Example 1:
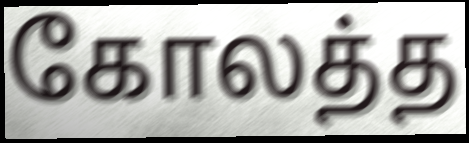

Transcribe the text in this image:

கோலத்த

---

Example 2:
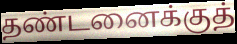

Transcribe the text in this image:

தண்டனைக்குத்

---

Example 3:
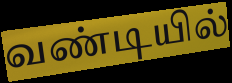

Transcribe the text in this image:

வண்டியில்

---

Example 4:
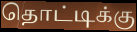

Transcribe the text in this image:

தொட்டிக்கு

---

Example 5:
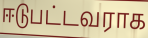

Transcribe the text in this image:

ஈடுபட்டவராக